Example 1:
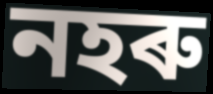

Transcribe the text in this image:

নহৰু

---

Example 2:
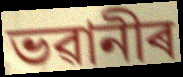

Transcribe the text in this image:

ভৱানীৰ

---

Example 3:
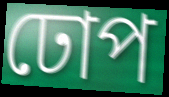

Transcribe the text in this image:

ঢোপ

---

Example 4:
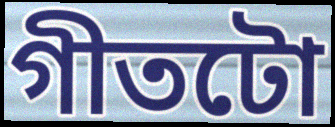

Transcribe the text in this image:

গীতটো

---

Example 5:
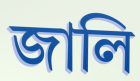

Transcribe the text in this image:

জালি